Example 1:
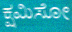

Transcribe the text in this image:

ಕ್ಷಮಿಸೋ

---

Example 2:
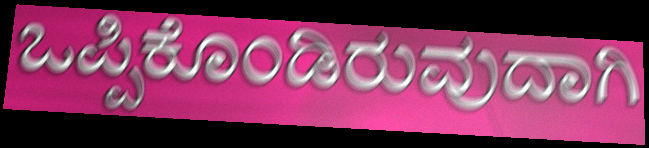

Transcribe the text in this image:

ಒಪ್ಪಿಕೊಂಡಿರುವುದಾಗಿ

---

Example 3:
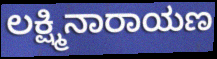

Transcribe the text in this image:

ಲಕ್ಷ್ಮಿನಾರಾಯಣ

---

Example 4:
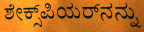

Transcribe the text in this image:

ಶೇಕ್ಸ್‌ಪಿಯರ್‌ನನ್ನು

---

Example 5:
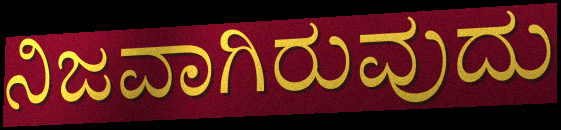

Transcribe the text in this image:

ನಿಜವಾಗಿರುವುದು